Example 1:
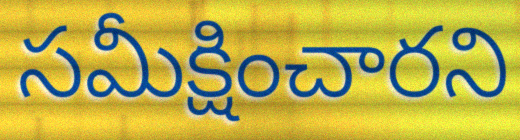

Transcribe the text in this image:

సమీక్షించారని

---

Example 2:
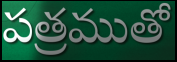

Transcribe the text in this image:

పత్రముతో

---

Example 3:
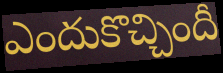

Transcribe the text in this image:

ఎందుకొచ్చిందీ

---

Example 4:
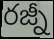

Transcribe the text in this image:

రజ్నీ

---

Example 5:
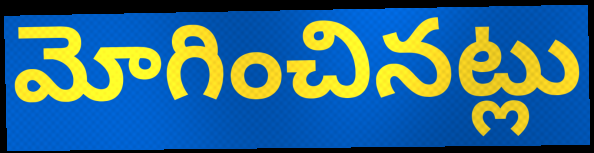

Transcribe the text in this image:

మోగించినట్లు